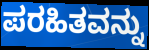
ಪರಹಿತವನ್ನು